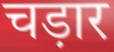
चड़ार